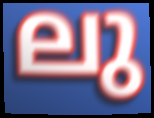
ലു